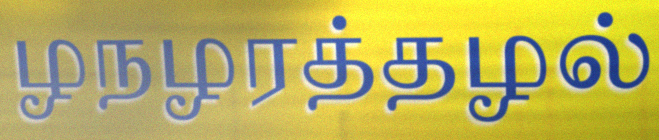
ழநழரத்தழல்